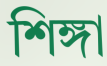
শিঙ্গা